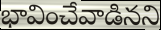
భావించేవాడినని